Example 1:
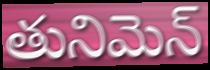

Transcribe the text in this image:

తునిమెన్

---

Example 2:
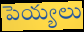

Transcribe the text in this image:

పెయ్యలు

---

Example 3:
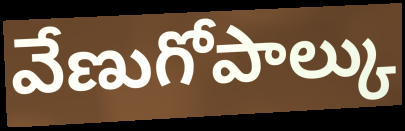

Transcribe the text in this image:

వేణుగోపాల్కు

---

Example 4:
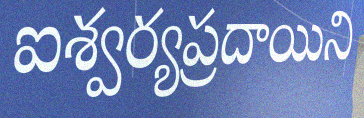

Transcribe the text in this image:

ఐశ్వర్యప్రదాయిని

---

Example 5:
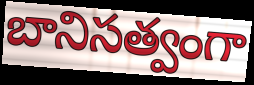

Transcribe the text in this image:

బానిసత్వంగా